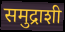
समुद्राशी